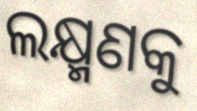
ଲକ୍ଷ୍ମଣକୁ